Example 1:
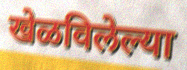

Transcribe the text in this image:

खेळविलेल्या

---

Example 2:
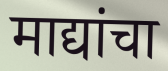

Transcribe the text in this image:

माद्यांचा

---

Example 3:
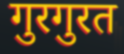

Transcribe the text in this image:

गुरगुरत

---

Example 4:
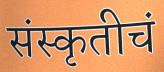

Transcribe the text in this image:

संस्कृतीचं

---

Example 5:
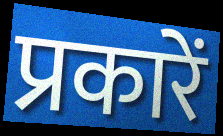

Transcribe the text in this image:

प्रकारें